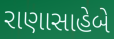
રાણાસાહેબે